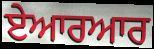
ਏਆਰਆਰ